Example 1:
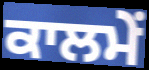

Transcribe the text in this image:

ਕਾਲਮੇਂ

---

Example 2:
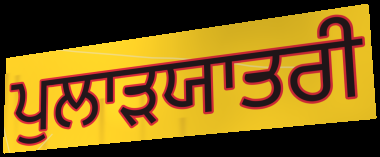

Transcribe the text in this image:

ਪੁਲਾੜਯਾਤਰੀ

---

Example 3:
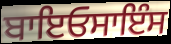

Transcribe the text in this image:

ਬਾਇਓਸਾਇੰਸ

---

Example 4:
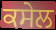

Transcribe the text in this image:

ਕਸੇਲ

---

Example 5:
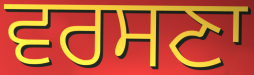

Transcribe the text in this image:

ਵਰਸਣਾ